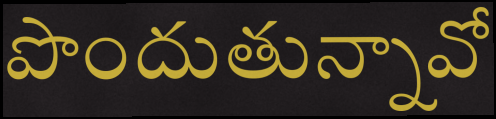
పొందుతున్నావో